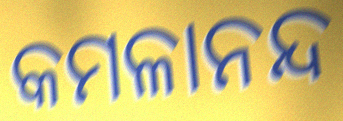
କମଳାନନ୍ଦ